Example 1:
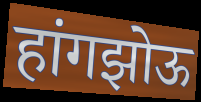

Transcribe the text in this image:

हांगझोऊ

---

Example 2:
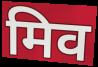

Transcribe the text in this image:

मिव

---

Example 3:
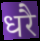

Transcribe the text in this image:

धरै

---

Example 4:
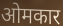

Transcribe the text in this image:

ओमकार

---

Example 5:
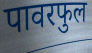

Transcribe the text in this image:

पावरफुल